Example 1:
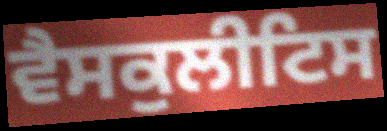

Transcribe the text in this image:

ਵੈਸਕੁਲੀਟਿਸ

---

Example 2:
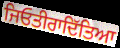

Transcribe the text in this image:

ਜਿਓਤੀਰਾਦਿੱਤਿਆ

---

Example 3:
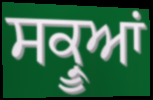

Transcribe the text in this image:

ਸਕ੍ਰੂਆਂ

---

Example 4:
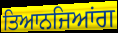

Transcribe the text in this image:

ਤਿਆਨਜਿਆਂਗ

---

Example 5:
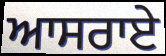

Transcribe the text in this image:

ਆਸਰਾਏ